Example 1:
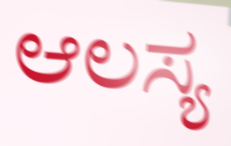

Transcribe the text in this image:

ಆಲಸ್ಯ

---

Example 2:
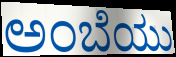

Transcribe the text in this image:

ಅಂಬೆಯು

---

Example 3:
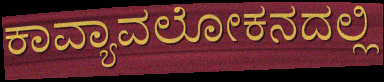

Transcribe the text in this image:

ಕಾವ್ಯಾವಲೋಕನದಲ್ಲಿ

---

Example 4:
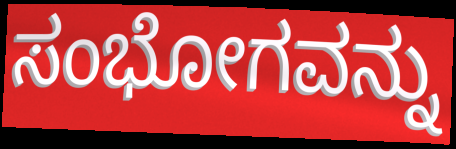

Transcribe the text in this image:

ಸಂಭೋಗವನ್ನು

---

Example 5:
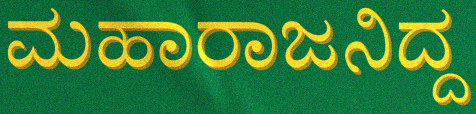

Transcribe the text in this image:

ಮಹಾರಾಜನಿದ್ದ